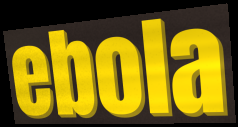
ebola